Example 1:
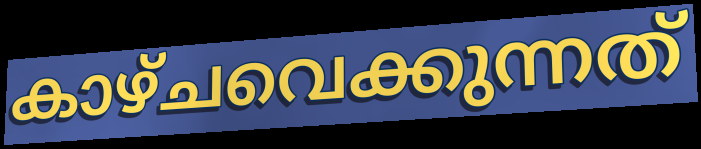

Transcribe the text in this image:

കാഴ്ചവെക്കുന്നത്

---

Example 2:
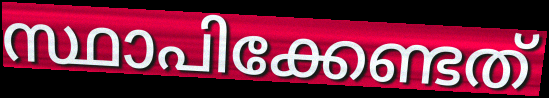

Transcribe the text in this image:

സ്ഥാപിക്കേണ്ടത്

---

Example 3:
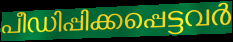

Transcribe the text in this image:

പീഡിപ്പിക്കപ്പെട്ടവർ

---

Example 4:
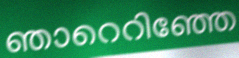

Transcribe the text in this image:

ഞാറെറിഞ്ഞേ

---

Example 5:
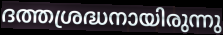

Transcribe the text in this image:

ദത്തശ്രദ്ധനായിരുന്നു